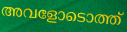
അവളോടൊത്ത്